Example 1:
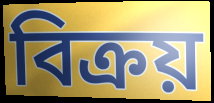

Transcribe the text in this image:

বিক্ৰয়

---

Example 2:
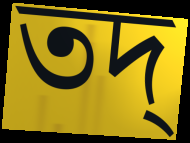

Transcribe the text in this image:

তদ্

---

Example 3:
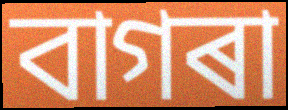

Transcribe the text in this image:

বাগৰা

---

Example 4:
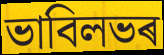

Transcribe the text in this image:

ভাবিলভৰ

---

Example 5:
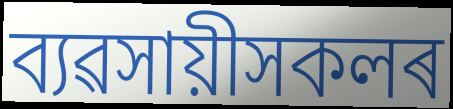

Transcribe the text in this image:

ব্যৱসায়ীসকলৰ